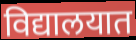
विद्यालयात